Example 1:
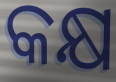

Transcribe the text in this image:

କକ୍ଷ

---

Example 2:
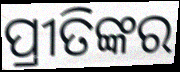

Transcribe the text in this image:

ପ୍ରୀତିଙ୍କର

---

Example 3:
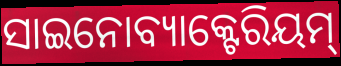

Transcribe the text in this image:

ସାଇନୋବ୍ୟାକ୍ଟେରିୟମ୍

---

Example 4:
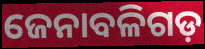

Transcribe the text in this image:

ଜେନାବଳିଗଡ଼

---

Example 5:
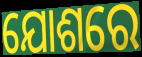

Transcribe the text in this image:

ଯୋଶରେ